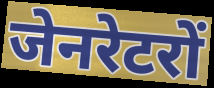
जेनरेटरों